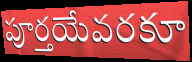
పూర్తయేవరకూ